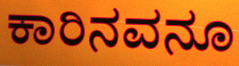
ಕಾರಿನವನೂ